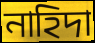
নাহিদা